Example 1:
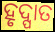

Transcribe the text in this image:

ହୃଦ୍ପାତ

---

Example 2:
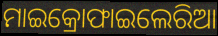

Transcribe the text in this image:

ମାଇକ୍ରୋଫାଇଲେରିଆ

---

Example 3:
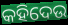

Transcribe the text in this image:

କହିଦେଉ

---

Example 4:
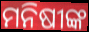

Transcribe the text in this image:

ମନିଷୀଙ୍କ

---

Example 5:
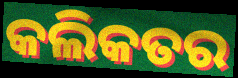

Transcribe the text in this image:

କଲିକତର